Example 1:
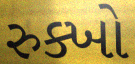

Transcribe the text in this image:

રુક્ખો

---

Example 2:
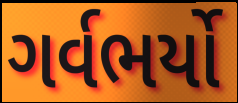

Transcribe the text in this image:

ગર્વભર્યો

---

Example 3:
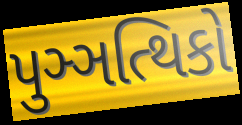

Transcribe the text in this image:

પુઞ્ઞત્થિકો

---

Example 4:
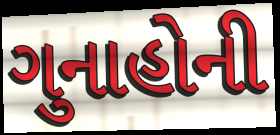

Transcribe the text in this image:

ગુનાહોની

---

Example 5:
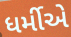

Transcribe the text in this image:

ધર્મીએ